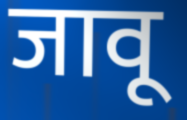
जावू